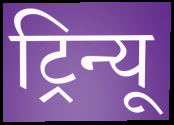
ट्रिन्यू